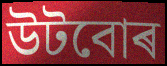
উটবোৰ